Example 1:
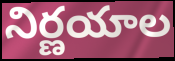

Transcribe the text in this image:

నిర్ణయాల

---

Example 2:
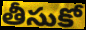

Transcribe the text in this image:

తీసుకో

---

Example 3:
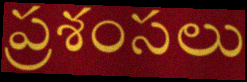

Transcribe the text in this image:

ప్రశంసలు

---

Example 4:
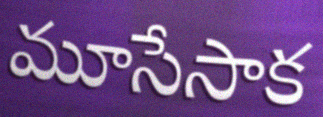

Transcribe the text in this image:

మూసేసాక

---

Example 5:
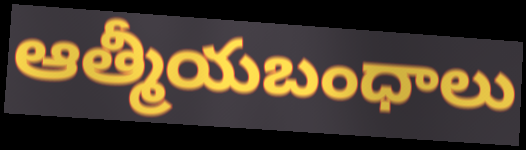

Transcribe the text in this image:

ఆత్మీయబంధాలు